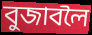
বুজাবলৈ